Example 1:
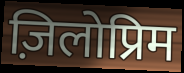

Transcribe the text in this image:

ज़िलोप्रिम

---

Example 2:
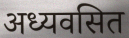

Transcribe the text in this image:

अध्यवसित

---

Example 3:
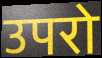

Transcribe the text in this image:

उपरो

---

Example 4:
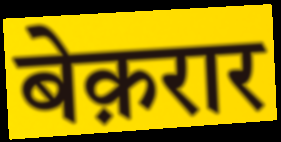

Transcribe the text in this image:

बेक़रार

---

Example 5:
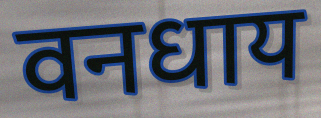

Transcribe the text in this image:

वनधाय